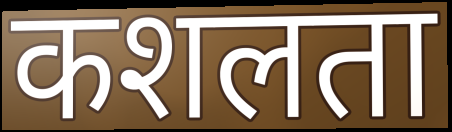
कशलता